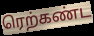
ரெற்கண்ட